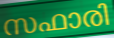
സഫാരി